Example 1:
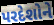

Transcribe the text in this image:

પરદેશોને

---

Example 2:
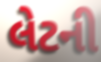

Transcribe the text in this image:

લેટની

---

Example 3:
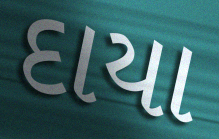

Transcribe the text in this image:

દાયા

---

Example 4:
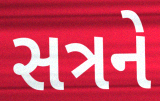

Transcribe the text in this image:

સત્રને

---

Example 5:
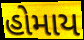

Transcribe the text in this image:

હોમાય